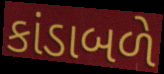
કાંડાબળે